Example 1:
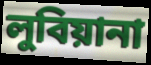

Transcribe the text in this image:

লুবিয়ানা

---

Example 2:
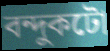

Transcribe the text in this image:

বন্দুকটো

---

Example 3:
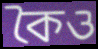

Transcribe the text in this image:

কৈও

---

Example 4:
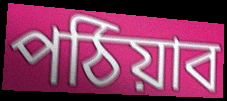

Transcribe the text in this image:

পঠিয়াব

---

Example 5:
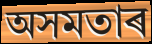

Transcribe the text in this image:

অসমতাৰ